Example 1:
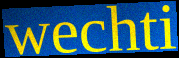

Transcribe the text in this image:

wechti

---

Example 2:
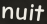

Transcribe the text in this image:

nuit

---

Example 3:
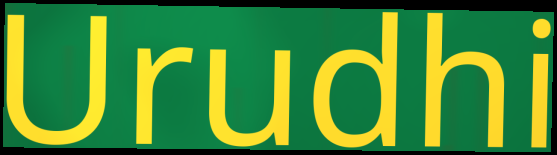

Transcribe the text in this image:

Urudhi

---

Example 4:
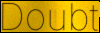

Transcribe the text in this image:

Doubt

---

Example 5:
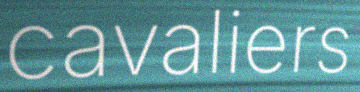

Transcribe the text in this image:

cavaliers